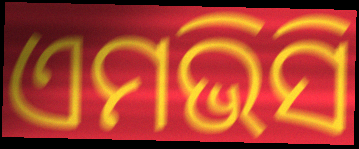
ଏମଭିସି